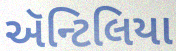
ઍન્ટિલિયા